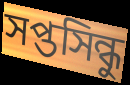
সপ্তসিন্ধু